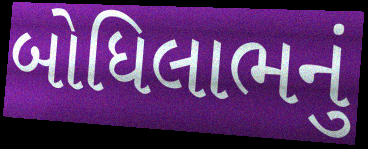
બોધિલાભનું